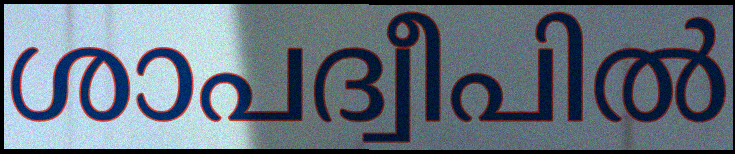
ശാപദ്വീപിൽ